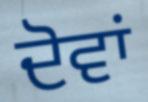
ਦੋਵਾਂ